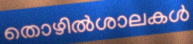
തൊഴിൽശാലകൾ